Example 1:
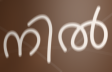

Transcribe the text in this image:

നിൽ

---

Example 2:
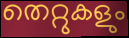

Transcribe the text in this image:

തെറ്റുകളും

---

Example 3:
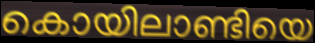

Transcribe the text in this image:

കൊയിലാണ്ടിയെ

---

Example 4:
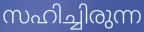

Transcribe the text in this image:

സഹിച്ചിരുന്ന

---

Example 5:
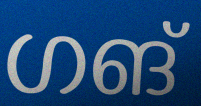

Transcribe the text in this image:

ഗങ്